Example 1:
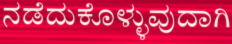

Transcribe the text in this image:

ನಡೆದುಕೊಳ್ಳುವುದಾಗಿ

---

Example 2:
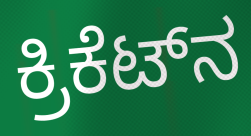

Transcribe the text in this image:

ಕ್ರಿಕೆಟ್‌ನ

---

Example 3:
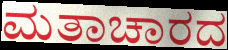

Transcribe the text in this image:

ಮತಾಚಾರದ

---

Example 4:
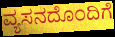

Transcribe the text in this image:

ವ್ಯಸನದೊಂದಿಗೆ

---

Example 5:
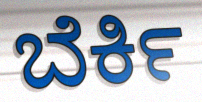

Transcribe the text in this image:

ಬೆರ್ಕಿ